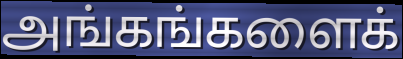
அங்கங்களைக்